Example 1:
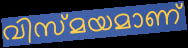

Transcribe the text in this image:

വിസ്മയമാണ്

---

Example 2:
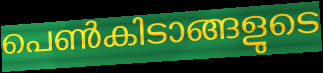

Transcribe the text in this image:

പെൺകിടാങ്ങളുടെ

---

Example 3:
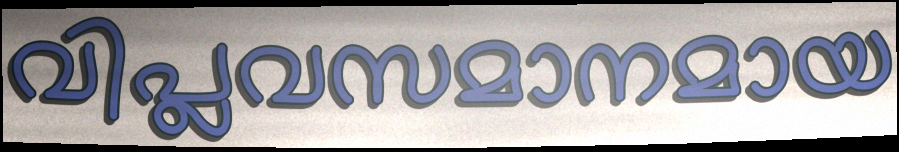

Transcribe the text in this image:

വിപ്ലവസമാനമായ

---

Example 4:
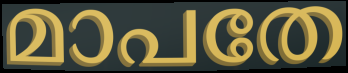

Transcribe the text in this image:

മാപതേ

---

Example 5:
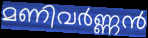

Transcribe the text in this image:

മണിവർണ്ണൻ